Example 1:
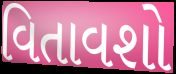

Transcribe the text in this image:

વિતાવશો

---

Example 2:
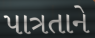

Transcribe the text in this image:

પાત્રતાને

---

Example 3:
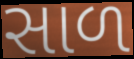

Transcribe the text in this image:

સાળ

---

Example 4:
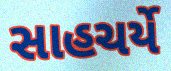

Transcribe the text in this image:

સાહચર્યે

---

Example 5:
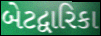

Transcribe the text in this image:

બેટદ્વારિકા